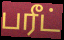
பரீட்